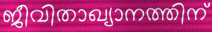
ജീവിതാഖ്യാനത്തിന്